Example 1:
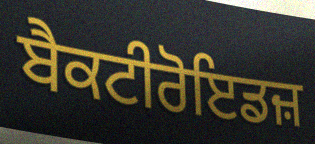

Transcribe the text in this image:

ਬੈਕਟੀਰੋਇਡਜ਼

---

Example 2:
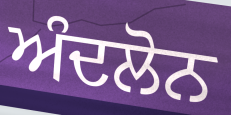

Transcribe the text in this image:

ਅੰਦਲੋਨ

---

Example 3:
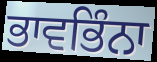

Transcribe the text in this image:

ਭਾਵਭਿੰਨਾ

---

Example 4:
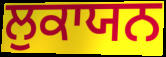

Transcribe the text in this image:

ਲੁਕਾਯਨ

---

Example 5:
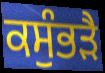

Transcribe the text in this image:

ਕਸੁੰਭੜੈ